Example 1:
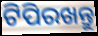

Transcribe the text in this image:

ଟିପିରଖନ୍ତୁ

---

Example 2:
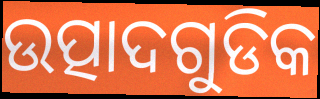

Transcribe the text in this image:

ଉତ୍ପାଦଗୁଡିକ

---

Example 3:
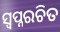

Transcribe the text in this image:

ସ୍ୱପ୍ନରଚିତ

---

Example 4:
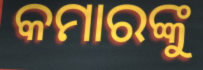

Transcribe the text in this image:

କମାରଙ୍କୁ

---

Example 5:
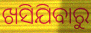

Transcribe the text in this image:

ଖସିଯିବାରୁ